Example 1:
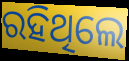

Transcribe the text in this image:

ରହିଥିଲେ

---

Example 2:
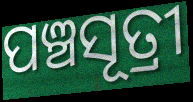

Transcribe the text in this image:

ପଞ୍ଚସୂତ୍ରୀ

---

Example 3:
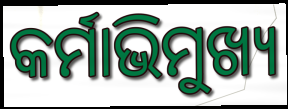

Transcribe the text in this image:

କର୍ମାଭିମୁଖ୍ୟ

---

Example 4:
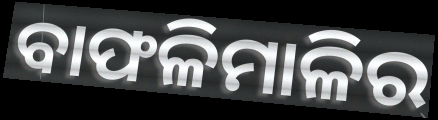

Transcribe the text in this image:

ବାଫଳିମାଳିର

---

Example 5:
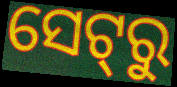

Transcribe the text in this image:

ସେଟ୍‌ରୁ